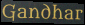
Gandhar